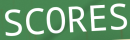
SCORES